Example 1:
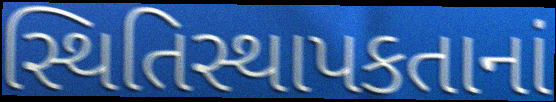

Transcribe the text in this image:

સ્થિતિસ્થાપકતાનાં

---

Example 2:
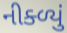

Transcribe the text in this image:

નીક્ળ્યું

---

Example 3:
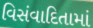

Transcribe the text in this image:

વિસંવાદિતામાં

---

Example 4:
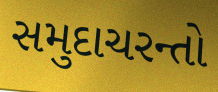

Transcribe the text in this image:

સમુદાચરન્તો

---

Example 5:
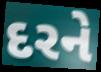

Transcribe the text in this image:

દરને